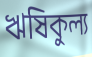
ঋষিকুল্য